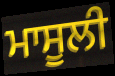
ਮਾਸੂਲੀ